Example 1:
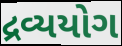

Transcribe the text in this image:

દ્રવ્યયોગ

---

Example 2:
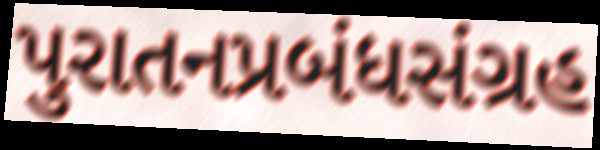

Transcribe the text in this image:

પુરાતનપ્રબંધસંગ્રહ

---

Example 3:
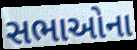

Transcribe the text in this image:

સભાઓના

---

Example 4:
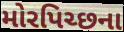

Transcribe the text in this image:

મોરપિચ્છના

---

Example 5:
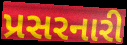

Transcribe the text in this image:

પ્રસરનારી